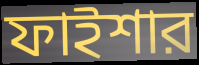
ফাইশার